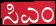
ಸಿಎಂ